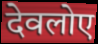
देवलोए